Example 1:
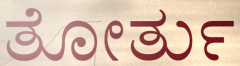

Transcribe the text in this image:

ತೋರ್ತು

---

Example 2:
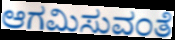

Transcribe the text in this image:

ಆಗಮಿಸುವಂತೆ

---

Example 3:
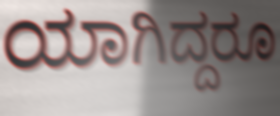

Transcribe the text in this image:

ಯಾಗಿದ್ದರೂ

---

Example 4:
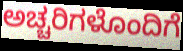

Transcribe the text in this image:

ಅಚ್ಚರಿಗಳೊಂದಿಗೆ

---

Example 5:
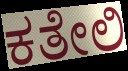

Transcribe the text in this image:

ಕತೇಲಿ